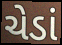
ચેડાં